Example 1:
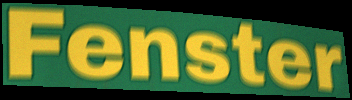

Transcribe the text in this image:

Fenster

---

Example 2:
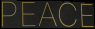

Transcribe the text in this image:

PEACE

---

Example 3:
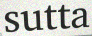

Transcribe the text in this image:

sutta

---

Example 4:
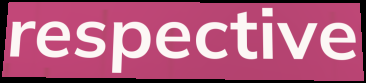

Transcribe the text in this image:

respective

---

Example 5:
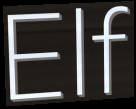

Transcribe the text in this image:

Elf